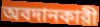
অবদানকারী